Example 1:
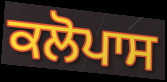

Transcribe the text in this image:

ਕਲੋਪਾਸ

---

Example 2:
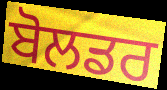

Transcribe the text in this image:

ਬੋਲਡਰ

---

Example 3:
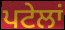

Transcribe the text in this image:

ਪਟੇਲਾਂ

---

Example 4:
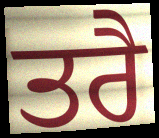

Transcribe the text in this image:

ਤਰੈ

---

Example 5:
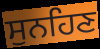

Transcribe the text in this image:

ਸੁਨਹਿਣ